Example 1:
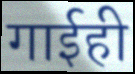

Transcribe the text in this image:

गाईही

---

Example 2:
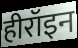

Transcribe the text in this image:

हीरॉइन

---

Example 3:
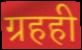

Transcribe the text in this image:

ग्रहही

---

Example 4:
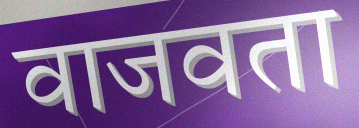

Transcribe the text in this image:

वाजवता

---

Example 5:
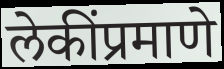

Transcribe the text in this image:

लेकींप्रमाणे